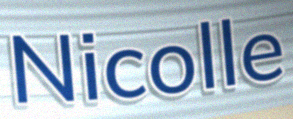
Nicolle